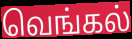
வெங்கல்